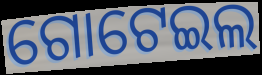
ଗୋଟେଇଲ